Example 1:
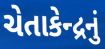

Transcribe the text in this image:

ચેતાકેન્દ્રનું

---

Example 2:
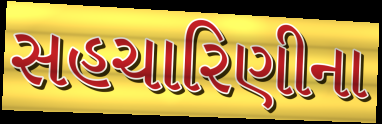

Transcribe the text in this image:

સહચારિણીના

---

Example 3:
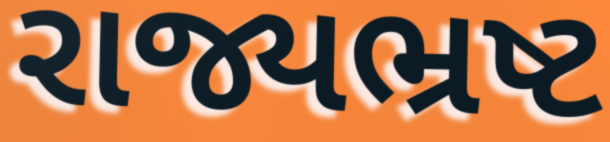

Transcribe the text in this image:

રાજ્યભ્રષ્ટ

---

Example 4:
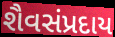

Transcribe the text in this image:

શૈવસંપ્રદાય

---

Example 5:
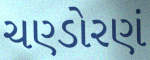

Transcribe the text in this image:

ચણ્ડોરણં